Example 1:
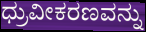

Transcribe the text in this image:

ಧ್ರುವೀಕರಣವನ್ನು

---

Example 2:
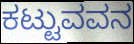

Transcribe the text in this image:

ಕಟ್ಟುವವನ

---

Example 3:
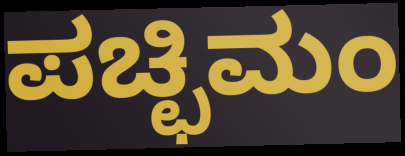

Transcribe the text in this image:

ಪಚ್ಛಿಮಂ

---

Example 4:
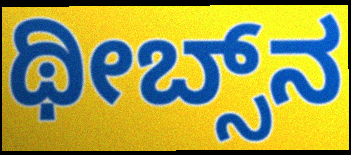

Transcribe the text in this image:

ಥೀಬ್ಸ್‌ನ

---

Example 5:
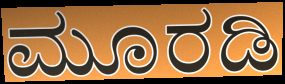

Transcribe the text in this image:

ಮೂರಡಿ